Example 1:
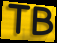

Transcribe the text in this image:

TB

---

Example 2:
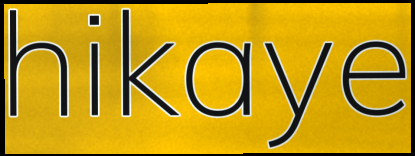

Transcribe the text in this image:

hikaye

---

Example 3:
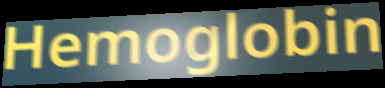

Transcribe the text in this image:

Hemoglobin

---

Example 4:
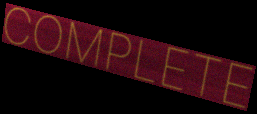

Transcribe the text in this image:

COMPLETE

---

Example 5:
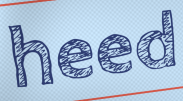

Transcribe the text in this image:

heed